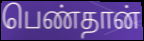
பெண்தான்